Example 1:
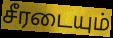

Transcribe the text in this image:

சீரடையும்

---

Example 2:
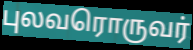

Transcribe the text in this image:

புலவரொருவர்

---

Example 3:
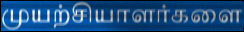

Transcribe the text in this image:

முயற்சியாளர்களை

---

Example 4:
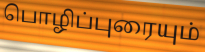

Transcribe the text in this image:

பொழிப்புரையும்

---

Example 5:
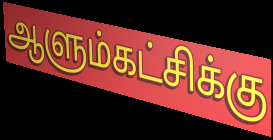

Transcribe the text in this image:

ஆளும்கட்சிக்கு